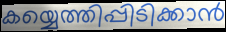
കയ്യെത്തിപ്പിടിക്കാൻ